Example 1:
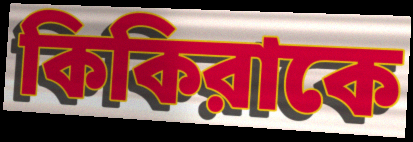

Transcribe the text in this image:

কিকিরাকে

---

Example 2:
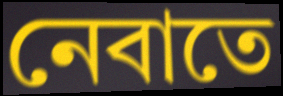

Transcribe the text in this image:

নেবাতে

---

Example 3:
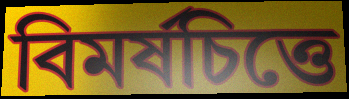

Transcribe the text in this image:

বিমর্ষচিত্তে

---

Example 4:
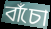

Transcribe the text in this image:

বাঁচো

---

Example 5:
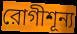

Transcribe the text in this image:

রোগীশূন্য